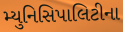
મ્યુનિસિપાલિટીના